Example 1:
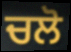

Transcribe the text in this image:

ਚਲੋ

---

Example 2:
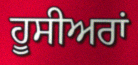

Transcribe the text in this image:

ਹੂਸੀਅਰਾਂ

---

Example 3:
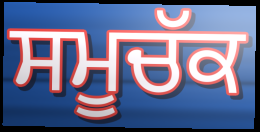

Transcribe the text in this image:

ਸਮੂਚੱਕ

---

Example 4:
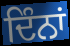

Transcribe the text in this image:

ਦਿੰਨਾਂ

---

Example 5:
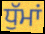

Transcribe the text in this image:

ਧੁੱਮਾਂ